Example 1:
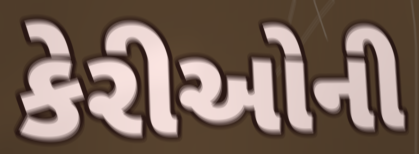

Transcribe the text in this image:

કેરીઓની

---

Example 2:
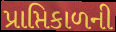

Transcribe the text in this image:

પ્રાપ્તિકાળની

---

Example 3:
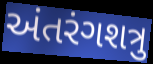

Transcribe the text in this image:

અંતરંગશત્રુ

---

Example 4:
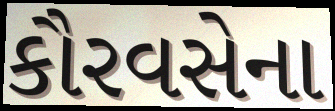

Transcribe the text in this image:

કૌરવસેના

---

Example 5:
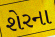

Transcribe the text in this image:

શેરના